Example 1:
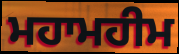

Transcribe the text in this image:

ਮਹਾਮਹੀਮ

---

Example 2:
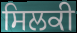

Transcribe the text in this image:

ਸਿਲਕੀ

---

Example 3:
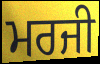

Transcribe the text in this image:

ਮਰਜੀ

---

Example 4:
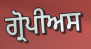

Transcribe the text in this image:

ਗ੍ਰੋਪੀਅਸ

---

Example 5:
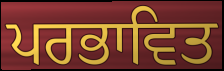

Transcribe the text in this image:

ਪਰਭਾਵਿਤ